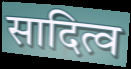
सादित्व